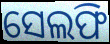
ସେଲଫି